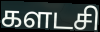
களடசி